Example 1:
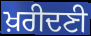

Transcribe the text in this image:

ਖ਼ਰੀਦਣੀ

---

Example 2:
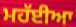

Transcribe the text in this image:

ਮਹੱਈਆ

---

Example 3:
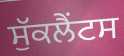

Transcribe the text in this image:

ਸੁੱਕਲੈਂਟਸ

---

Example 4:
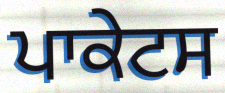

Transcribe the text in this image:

ਪਾਕੇਟਸ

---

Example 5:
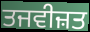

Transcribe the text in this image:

ਤਜਵੀਜ਼ਤ